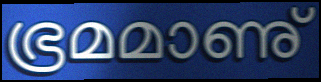
ഭ്രമമാണു്